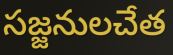
సజ్జనులచేత